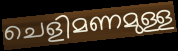
ചെളിമണമുള്ള